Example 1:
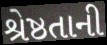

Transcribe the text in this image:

શ્રેષ્ઠતાની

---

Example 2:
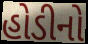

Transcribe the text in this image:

હોડીનો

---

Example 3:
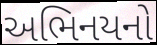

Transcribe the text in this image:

અભિનયનો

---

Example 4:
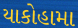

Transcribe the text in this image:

યાકોહામા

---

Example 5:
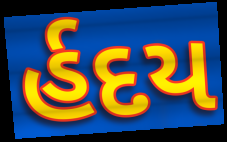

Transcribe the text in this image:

ર્હદય